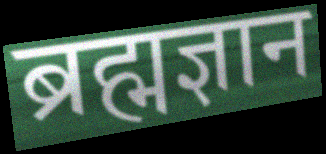
ब्रह्मज्ञान